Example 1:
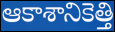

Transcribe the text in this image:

ఆకాశానికెత్తి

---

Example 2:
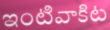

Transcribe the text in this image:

ఇంటివాకిట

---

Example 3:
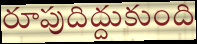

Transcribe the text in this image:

రూపుదిద్దుకుంది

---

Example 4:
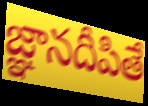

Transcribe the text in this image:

జ్ఞానదీపితే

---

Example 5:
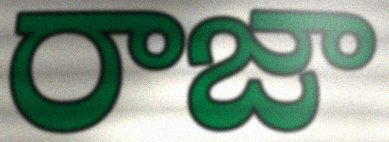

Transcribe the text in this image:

రాజా